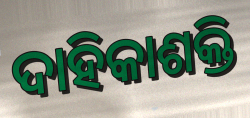
ଦାହିକାଶକ୍ତି